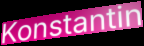
Konstantin